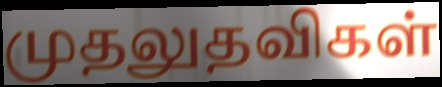
முதலுதவிகள்